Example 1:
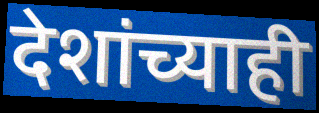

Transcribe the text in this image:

देशांच्याही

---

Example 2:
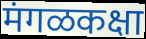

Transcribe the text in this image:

मंगळकक्षा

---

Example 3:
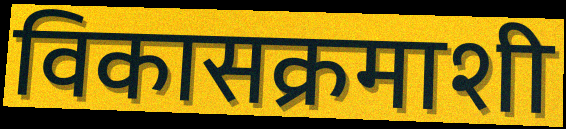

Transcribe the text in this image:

विकासक्रमाशी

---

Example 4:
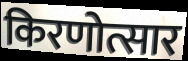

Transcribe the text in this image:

किरणोत्सार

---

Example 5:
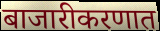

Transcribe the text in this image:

बाजारीकरणात